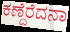
ಕಣ್ದೆರೆದನಾ